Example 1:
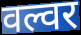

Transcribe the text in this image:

वल्वर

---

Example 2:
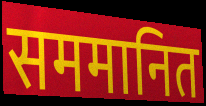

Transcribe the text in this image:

सममानित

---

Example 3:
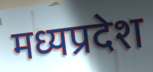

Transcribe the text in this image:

मध्यप्रदेश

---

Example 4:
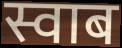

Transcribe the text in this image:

स्वाब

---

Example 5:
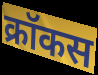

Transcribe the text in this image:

क्रॉकस